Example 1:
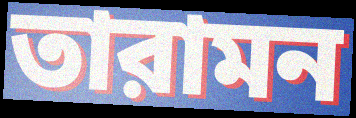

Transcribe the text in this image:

তারামন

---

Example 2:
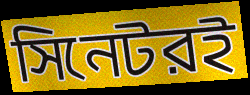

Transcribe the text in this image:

সিনেটরই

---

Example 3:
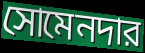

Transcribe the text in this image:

সোমেনদার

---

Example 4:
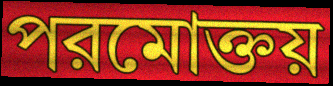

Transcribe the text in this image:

পরমোক্তয়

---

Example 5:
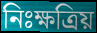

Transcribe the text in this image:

নিঃক্ষত্রিয়